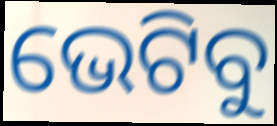
ଭେଟିବୁ